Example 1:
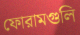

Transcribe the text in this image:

ফোরামগুলি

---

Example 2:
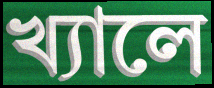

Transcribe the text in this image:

খ্যালে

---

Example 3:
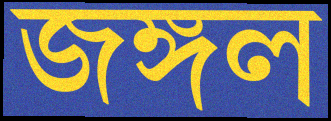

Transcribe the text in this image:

জঙ্গল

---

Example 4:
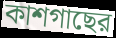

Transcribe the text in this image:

কাশগাছের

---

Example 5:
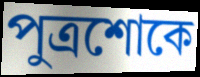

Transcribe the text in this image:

পুত্রশোকে